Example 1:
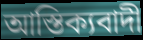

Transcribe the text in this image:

আস্তিক্যবাদী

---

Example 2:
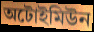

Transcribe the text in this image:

অটোইমিউন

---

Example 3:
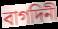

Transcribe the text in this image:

বাগদিনী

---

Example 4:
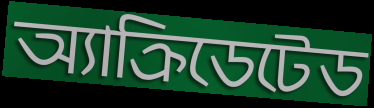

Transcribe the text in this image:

অ্যাক্রিডেটেড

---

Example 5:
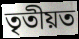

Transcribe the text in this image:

তৃতীয়ত